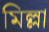
মিল্লা